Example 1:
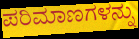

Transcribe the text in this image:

ಪರಿಮಾಣಗಳನ್ನು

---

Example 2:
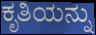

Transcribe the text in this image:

ಕೃತಿಯನ್ನು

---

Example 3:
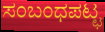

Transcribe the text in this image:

ಸಂಬಂಧಪಟ್ಟ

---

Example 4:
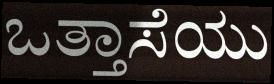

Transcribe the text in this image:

ಒತ್ತಾಸೆಯು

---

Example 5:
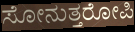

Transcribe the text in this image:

ಸೋನುತ್ತರೋಪಿ